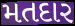
મતદાર